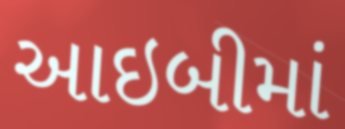
આઇબીમાં